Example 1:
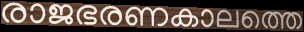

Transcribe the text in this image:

രാജഭരണകാലത്തെ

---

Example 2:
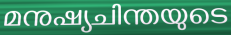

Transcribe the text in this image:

മനുഷ്യചിന്തയുടെ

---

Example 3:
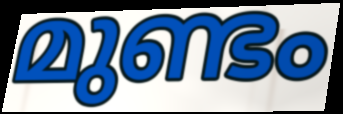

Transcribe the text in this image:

മുണ്ടം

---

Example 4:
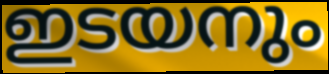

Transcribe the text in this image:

ഇടയനും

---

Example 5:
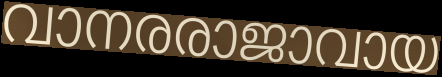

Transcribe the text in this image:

വാനരരാജാവായ